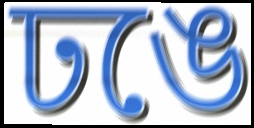
ঢঙে